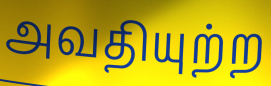
அவதியுற்ற